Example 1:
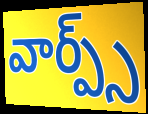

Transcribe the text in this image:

వార్ప్స్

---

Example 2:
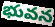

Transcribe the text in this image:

భువన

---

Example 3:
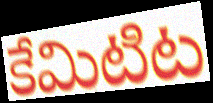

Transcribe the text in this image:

కేమిటిట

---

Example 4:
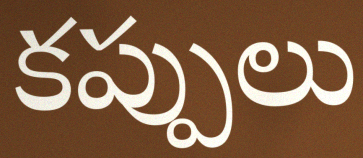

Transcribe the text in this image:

కప్పులు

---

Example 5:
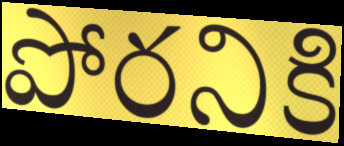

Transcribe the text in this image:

పోరనికి